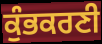
ਕੁੰਭਕਰਣੀ